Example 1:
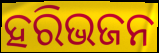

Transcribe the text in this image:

ହରିଭଜନ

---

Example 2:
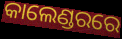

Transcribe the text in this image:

କାଲେଣ୍ଡରରେ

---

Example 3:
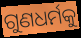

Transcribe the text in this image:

ଗୁଣଧର୍ମକୁ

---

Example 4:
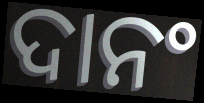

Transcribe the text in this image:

ଦାନଂ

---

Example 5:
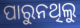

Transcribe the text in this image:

ପାରୁନଥିଲୁ